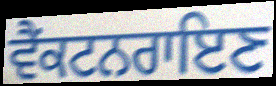
ਵੈਂਕਟਨਰਾਇਣ